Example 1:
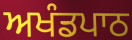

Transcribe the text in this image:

ਅਖੰਡਪਾਠ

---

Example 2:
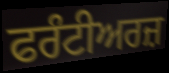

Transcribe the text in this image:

ਫਰੰਟੀਅਰਜ਼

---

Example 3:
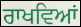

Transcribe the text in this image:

ਰਾਖਵਿਆਂ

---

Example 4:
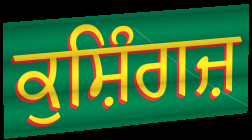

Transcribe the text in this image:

ਕੁਸ਼ਿੰਗਜ਼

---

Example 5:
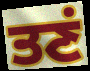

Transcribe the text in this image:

ਤਣਂ